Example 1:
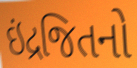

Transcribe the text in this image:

ઇંદ્રજિતનો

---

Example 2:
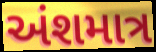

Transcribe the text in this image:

અંશમાત્ર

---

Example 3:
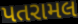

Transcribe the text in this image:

પતરામલ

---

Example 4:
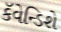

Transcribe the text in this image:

કૅવેન્ડિશે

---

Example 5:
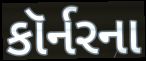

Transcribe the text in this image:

કૉર્નરના